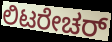
ಲಿಟರೇಚರ್